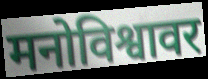
मनोविश्वावर